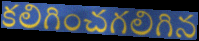
కలిగించగలిగిన